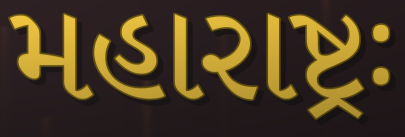
મહારાષ્ટ્રઃ